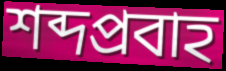
শব্দপ্রবাহ